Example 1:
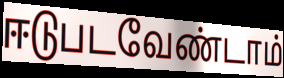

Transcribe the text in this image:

ஈடுபடவேண்டாம்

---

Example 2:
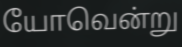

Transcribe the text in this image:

யோவென்று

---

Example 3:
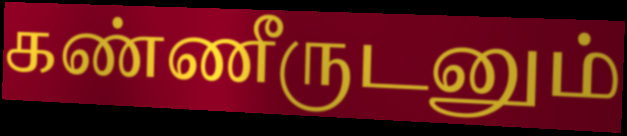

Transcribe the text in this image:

கண்ணீருடனும்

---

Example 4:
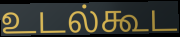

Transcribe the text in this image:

உடல்கூட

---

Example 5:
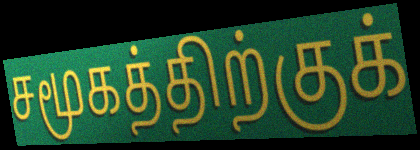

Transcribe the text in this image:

சமூகத்திற்குக்